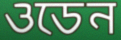
ওডেন